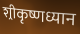
श्रीकृष्णध्यान